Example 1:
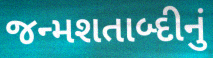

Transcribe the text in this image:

જન્મશતાબ્દીનું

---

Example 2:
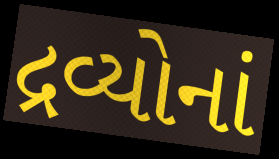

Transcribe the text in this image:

દ્રવ્યોનાં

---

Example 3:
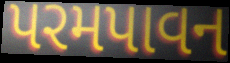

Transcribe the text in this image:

પરમપાવન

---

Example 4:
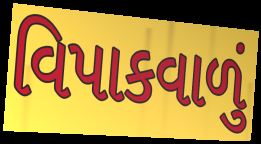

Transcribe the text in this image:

વિપાકવાળું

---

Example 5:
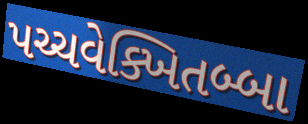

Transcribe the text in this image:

પચ્ચવેક્ખિતબ્બા